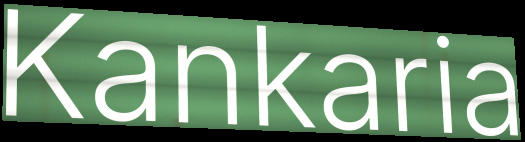
Kankaria